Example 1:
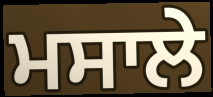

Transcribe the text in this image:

ਮਸਾਲੇ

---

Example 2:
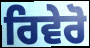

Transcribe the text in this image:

ਰਿਵੇਰੋ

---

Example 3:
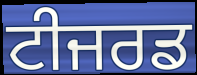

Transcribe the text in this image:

ਟੀਜਰਡ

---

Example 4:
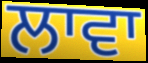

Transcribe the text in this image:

ਲਾਵਾ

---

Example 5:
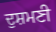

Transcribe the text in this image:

ਦੁਸ਼ਮਣੀ